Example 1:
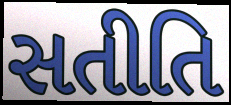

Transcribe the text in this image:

સતીતિ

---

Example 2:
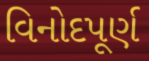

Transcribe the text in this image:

વિનોદપૂર્ણ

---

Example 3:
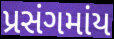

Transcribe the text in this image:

પ્રસંગમાંય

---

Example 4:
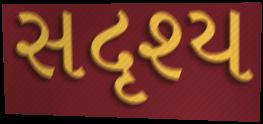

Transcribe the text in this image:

સદૃશ્ય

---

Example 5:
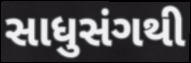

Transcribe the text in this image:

સાધુસંગથી